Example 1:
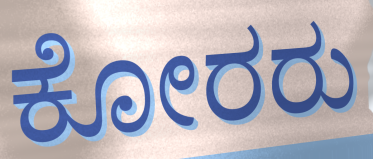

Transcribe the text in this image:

ಕೋರರು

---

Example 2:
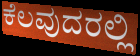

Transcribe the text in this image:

ಕೆಲವುದರಲ್ಲಿ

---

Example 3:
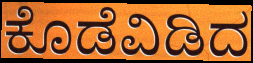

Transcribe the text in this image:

ಕೊಡೆವಿಡಿದ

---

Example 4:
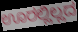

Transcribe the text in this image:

ಊರಲ್ಲಿಲ್ಲದ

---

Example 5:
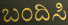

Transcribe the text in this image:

ಬಂದಿಸಿ